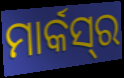
ମାର୍କସ୍‍ର